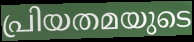
പ്രിയതമയുടെ